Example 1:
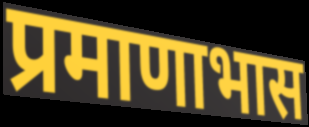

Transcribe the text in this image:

प्रमाणाभास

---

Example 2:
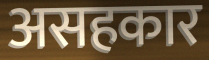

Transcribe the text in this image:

असहकार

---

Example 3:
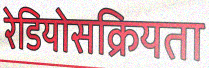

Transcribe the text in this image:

रेडियोसक्रियता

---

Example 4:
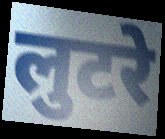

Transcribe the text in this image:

लुटरे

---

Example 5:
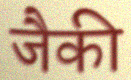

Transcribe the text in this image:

जैकी